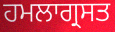
ਹਮਲਾਗ੍ਰਸਤ